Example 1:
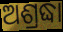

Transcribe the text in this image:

ଅଶ୍ରଦ୍ଧା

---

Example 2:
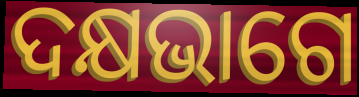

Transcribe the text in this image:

ଦକ୍ଷଭାଗେ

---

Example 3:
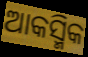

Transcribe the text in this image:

ଆକସ୍ମିକ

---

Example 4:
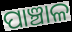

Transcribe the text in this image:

ପାଞ୍ଚାଳ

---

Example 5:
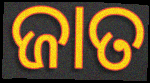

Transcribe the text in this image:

ଜାତ